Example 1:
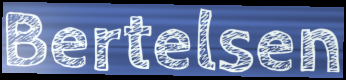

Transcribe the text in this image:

Bertelsen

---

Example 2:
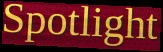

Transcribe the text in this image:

Spotlight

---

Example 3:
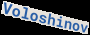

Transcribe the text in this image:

Voloshinov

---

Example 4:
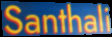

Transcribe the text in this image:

Santhali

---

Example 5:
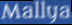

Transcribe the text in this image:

Mallya